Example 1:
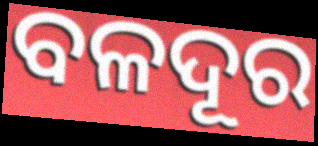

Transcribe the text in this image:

ବଳଦୂର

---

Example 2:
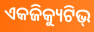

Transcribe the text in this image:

ଏକଜିକ୍ୟୁଟିଭ୍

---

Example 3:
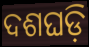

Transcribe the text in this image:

ଦଶଘଡ଼ି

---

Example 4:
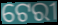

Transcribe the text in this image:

ଟେରୀ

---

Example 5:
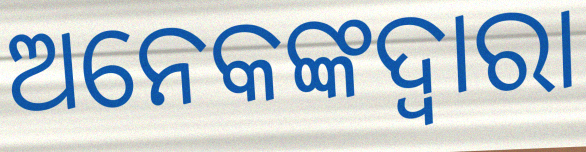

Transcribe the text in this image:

ଅନେକଙ୍କଦ୍ୱାରା